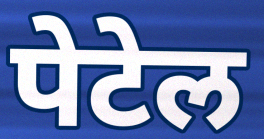
पेटेल